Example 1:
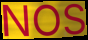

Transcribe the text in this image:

NOS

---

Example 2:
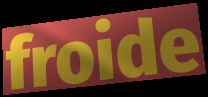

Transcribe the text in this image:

froide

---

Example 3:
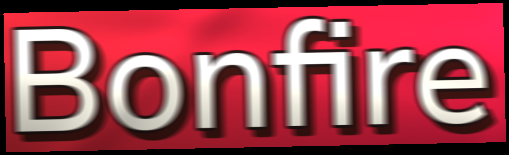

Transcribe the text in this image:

Bonfire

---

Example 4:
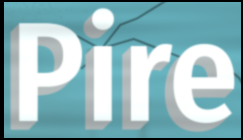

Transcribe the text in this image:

Pire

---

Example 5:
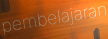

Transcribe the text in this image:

pembelajaran